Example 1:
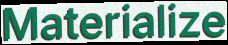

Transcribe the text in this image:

Materialize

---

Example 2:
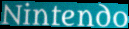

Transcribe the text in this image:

Nintendo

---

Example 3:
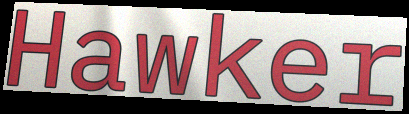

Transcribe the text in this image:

Hawker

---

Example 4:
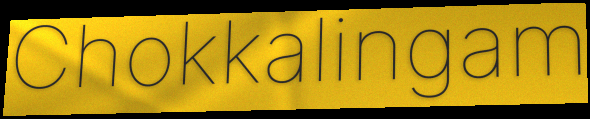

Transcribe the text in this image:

Chokkalingam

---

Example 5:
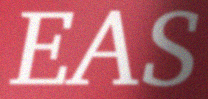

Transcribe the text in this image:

EAS